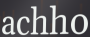
achho